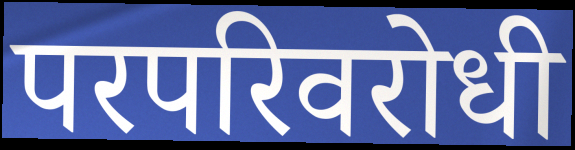
परपरिवरोधी